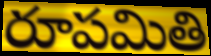
రూపమితి